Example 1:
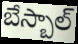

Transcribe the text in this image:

బేస్బాల్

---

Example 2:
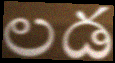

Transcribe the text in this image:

లడ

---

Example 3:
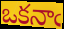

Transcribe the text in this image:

ఒకనాఁ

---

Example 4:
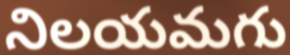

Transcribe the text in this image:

నిలయమగు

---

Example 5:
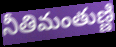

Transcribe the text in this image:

నీతిమంతుణ్ణి